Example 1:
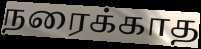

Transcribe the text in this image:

நரைக்காத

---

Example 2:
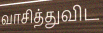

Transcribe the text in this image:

வாசித்துவிட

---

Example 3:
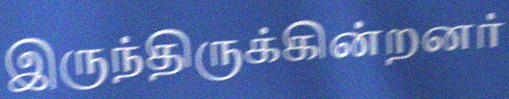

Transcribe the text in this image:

இருந்திருக்கின்றனர்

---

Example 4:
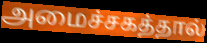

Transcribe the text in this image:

அமைச்சகத்தால்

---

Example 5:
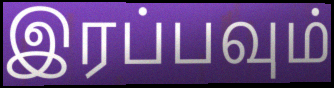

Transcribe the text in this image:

இரப்பவும்